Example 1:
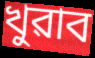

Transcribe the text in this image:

খুৱাব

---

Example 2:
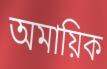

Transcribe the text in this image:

অমায়িক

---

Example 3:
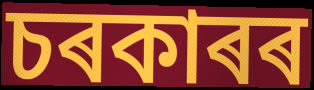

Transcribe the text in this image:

চৰকাৰৰ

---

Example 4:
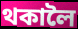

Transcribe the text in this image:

থকালৈ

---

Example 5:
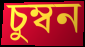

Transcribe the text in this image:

চুম্বন